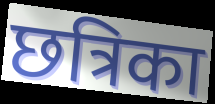
छत्रिका